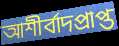
আশীর্বাদপ্রাপ্ত